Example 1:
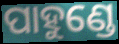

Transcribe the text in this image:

ପାହୁଣ୍ଡେ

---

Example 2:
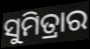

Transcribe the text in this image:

ସୁମିତ୍ରାର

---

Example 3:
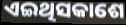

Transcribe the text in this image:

ଏଇଥିସକାଶେ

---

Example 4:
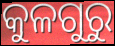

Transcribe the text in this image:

କୁଳଗୁରୁ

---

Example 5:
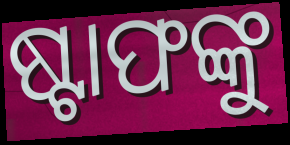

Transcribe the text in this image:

ଷ୍ଟାଫଙ୍କୁ